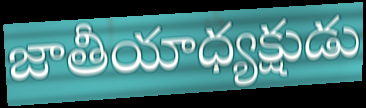
జాతీయాధ్యక్షుడు